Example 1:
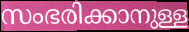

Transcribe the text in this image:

സംഭരിക്കാനുള്ള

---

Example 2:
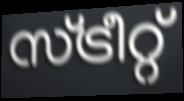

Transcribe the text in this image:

സ്ട്രീറ്റ്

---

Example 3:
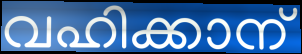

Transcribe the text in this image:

വഹിക്കാന്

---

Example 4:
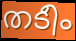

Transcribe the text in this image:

തടീം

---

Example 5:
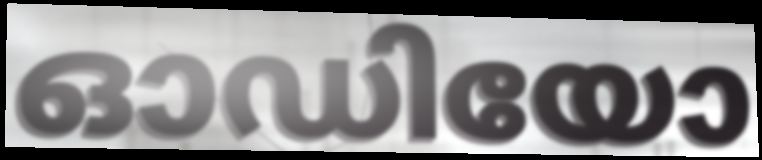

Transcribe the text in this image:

ഓഡിയോ